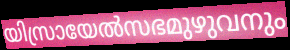
യിസ്രായേൽസഭമുഴുവനും